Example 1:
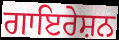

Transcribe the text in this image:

ਗਾਇਰੇਸ਼ਨ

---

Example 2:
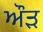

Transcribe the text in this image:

ਔਡ਼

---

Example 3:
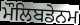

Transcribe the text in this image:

ਮੌਲਿਬਡੇਨਮ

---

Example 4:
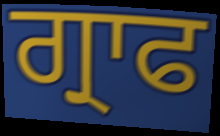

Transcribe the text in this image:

ਗ੍ਰਾਫ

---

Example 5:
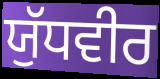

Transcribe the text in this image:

ਯੁੱਧਵੀਰ